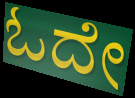
ಓದೇ